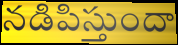
నడిపిస్తుందా